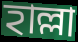
হাল্লা